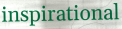
inspirational